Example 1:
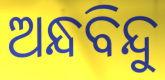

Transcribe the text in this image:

ଅନ୍ଧବିନ୍ଦୁ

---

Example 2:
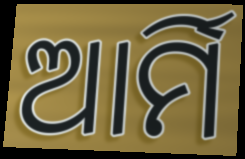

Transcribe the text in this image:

ଆର୍ମି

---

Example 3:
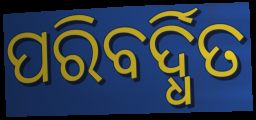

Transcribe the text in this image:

ପରିବର୍ଦ୍ଧିତ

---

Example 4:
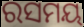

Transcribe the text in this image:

ରସମୟ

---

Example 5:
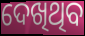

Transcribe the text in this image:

ଦେଖିଥିବ